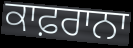
ਕਾਫ਼ਰਾਨਾ